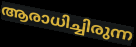
ആരാധിച്ചിരുന്ന